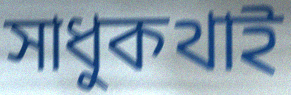
সাধুকথাই